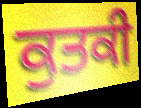
ਕੁਤਕੀ